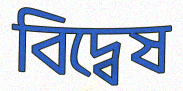
বিদ্বেষ